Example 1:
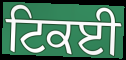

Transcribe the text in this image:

ਟਿਕਈ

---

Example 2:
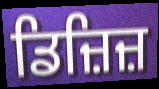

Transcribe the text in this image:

ਡਿਜ਼ਿਜ਼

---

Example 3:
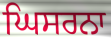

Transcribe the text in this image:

ਘਿਸਰਨਾ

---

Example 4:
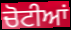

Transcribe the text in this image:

ਚੋਟੀਆਂ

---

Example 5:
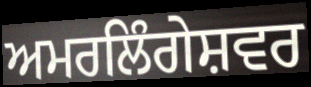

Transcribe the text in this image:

ਅਮਰਲਿੰਗੇਸ਼ਵਰ